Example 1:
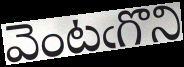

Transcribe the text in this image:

వెంటఁగొని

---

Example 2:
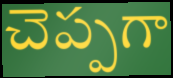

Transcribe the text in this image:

చెప్పగా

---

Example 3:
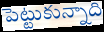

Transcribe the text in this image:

పెట్టుకున్నాది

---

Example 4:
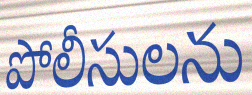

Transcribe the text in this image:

పోలీసులను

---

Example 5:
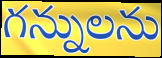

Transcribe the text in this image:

గన్నులను